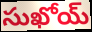
సుఖోయ్